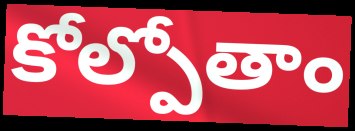
కోల్పోతాం